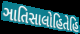
ઞાતિસાલોહિતેહિ